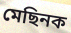
মেছিনক